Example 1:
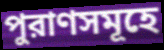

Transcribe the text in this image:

পুরাণসমূহে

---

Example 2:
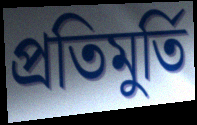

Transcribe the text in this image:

প্রতিমুর্তি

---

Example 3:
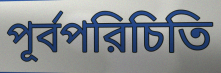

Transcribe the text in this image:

পূর্বপরিচিতি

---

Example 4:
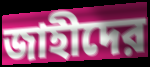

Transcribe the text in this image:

জাহীদের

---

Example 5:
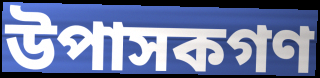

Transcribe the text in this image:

উপাসকগণ